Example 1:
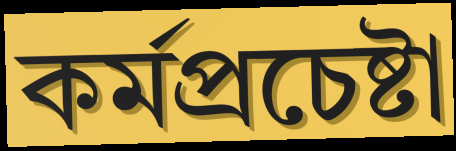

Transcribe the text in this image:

কর্মপ্রচেষ্টা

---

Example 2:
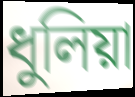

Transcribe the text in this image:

ধুলিয়া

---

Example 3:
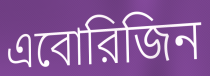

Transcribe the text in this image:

এবোরিজিন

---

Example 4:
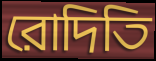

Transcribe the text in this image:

রোদিতি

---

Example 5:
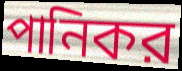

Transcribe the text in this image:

পানিকর